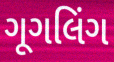
ગૂગલિંગ